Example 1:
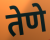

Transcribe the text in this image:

तेणे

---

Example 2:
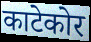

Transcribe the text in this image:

काटेकोर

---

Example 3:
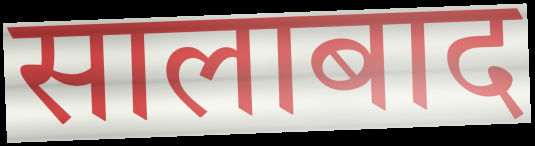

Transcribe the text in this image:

सालाबाद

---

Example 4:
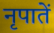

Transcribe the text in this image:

नृपातें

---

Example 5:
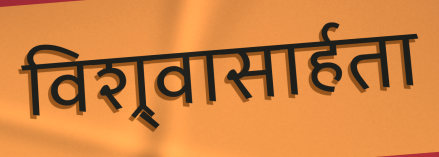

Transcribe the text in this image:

विश्र्वासार्हता